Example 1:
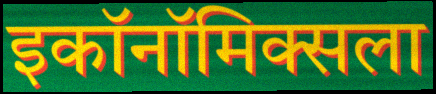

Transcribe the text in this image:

इकॉनॉमिक्सला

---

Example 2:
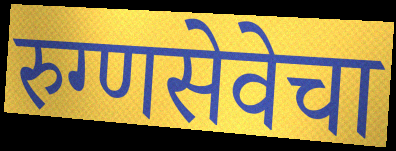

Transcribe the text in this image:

रुग्णसेवेचा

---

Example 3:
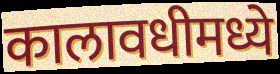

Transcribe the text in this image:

कालावधीमध्ये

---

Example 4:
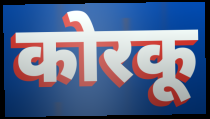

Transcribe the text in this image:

कोरकू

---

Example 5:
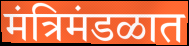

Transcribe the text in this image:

मंत्रिमंडळात